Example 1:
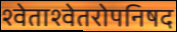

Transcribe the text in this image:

श्वेताश्वेतरोपनिषद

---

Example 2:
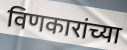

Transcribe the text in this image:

विणकारांच्या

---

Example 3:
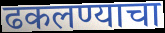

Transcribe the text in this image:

ढकलण्याचा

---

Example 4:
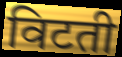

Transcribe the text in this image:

विटती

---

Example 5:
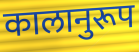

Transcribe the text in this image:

कालानुरूप